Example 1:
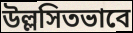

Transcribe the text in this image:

উল্লসিতভাবে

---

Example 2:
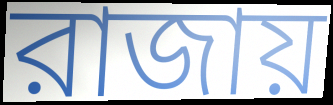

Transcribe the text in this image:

রাজায়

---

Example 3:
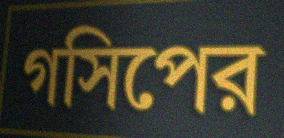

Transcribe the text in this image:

গসিপের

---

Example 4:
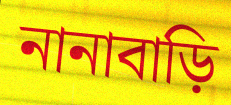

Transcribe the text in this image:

নানাবাড়ি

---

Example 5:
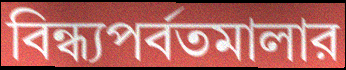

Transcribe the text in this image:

বিন্ধ্যপর্বতমালার